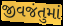
જીવજંતુમાં